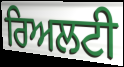
ਰਿਅਲਟੀ